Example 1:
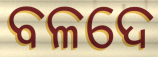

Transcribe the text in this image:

ବଳଦେ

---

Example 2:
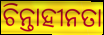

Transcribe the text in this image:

ଚିନ୍ତାହୀନତା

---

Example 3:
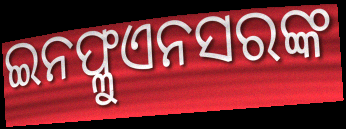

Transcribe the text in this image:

ଇନଫ୍ଳୁଏନସରଙ୍କ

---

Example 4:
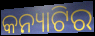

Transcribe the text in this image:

କନ୍ୟାଟିର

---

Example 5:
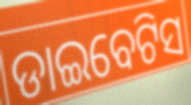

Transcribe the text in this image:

ଡାଇବେଟିସ